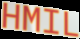
HMIL